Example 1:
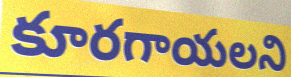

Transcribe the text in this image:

కూరగాయలని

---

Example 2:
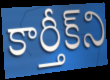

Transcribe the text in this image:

కార్తీక్‌ని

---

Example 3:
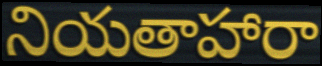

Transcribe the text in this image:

నియతాహారా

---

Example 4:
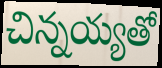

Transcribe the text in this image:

చిన్నయ్యతో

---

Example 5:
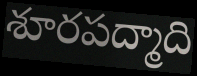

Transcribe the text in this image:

శూరపద్మాది